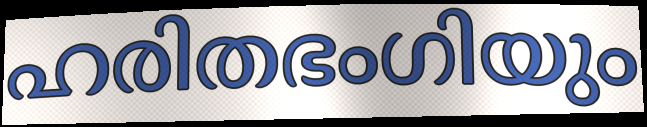
ഹരിതഭംഗിയും